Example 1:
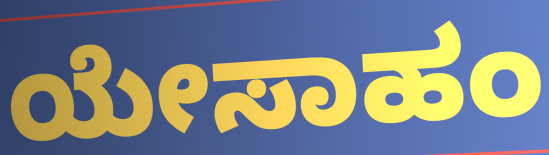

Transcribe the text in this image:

ಯೇಸಾಹಂ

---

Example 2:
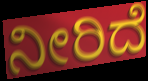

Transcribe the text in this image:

ನೀರಿದೆ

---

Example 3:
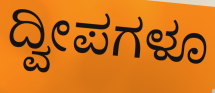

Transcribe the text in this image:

ದ್ವೀಪಗಳೂ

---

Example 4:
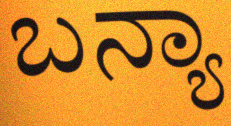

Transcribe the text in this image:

ಬನ್ಯಾ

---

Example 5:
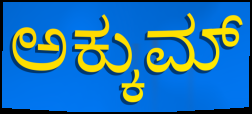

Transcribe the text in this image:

ಅಕ್ಕುಮ್